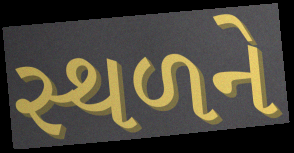
સ્‍થળને